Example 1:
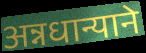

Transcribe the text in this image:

अन्नधान्याने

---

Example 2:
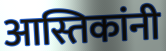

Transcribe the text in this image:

आस्तिकांनी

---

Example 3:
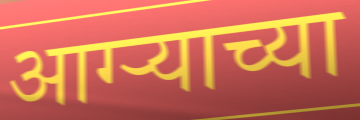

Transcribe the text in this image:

आग्ऱ्याच्या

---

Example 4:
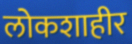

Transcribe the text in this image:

लोकशाहीर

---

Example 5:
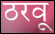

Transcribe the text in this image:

ठरवू